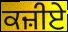
ਕਜ਼ੀਏ